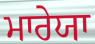
ਮਾਰੇਯਾ